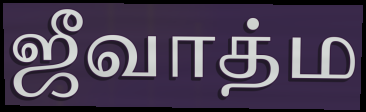
ஜீவாத்ம